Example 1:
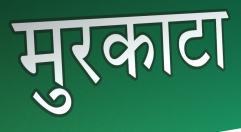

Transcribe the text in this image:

मुरकाटा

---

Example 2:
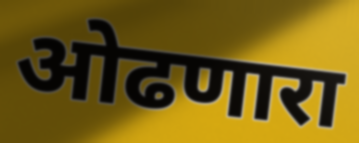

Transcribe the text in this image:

ओढणारा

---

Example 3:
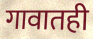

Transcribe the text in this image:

गावातही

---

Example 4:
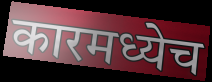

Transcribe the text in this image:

कारमध्येच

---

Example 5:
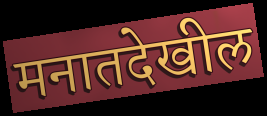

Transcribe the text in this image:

मनातदेखील